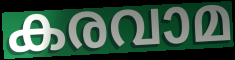
കരവാമ